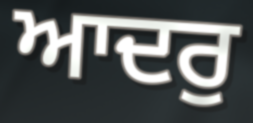
ਆਦਰੁ